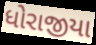
ધોરાજીયા